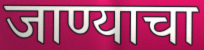
जाण्‍याचा